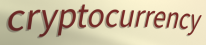
cryptocurrency